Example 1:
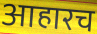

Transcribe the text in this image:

आहारच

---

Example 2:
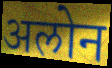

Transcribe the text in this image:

अलोन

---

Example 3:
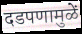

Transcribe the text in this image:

दडपणामुळें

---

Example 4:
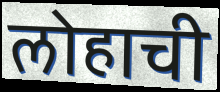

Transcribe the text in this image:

लोहाची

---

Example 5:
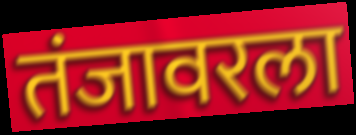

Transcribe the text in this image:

तंजावरला